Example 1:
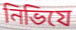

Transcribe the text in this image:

নিভিযে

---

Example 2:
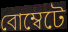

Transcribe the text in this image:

বোম্বেটে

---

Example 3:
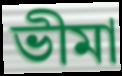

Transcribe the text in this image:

ভীমা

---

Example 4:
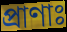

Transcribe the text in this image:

প্রাণাঃ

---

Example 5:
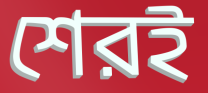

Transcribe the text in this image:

শেরই